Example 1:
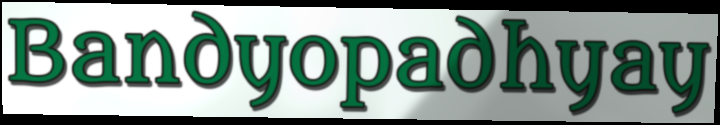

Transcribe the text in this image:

Bandyopadhyay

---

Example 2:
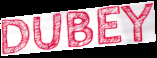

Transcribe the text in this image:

DUBEY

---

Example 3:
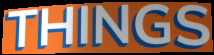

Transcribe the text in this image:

THINGS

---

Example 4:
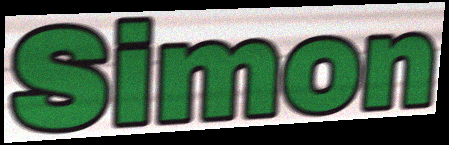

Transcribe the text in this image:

Simon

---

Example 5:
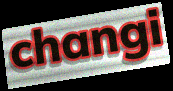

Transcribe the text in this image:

changi